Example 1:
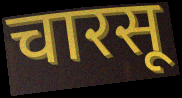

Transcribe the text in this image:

चारसू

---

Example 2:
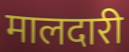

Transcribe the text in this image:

मालदारी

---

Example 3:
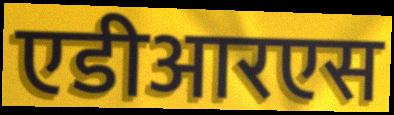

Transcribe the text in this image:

एडीआरएस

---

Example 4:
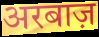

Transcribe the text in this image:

अरबाज़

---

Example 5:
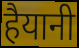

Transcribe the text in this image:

हैयानी